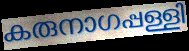
കരുനാഗപ്പള്ളി